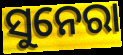
ସୁନେରା